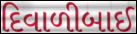
દિવાળીબાઈ